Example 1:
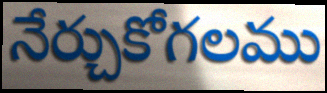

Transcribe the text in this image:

నేర్చుకోగలము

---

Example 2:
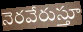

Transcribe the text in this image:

నెరవేరుస్తూ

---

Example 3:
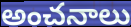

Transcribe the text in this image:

అంచనాలు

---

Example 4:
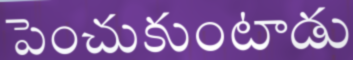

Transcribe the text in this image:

పెంచుకుంటాడు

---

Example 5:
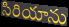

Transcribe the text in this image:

సిరియాను